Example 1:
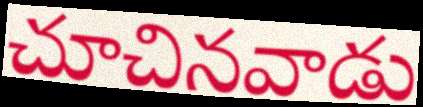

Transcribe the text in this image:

చూచినవాడు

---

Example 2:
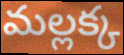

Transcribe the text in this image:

మల్లక్క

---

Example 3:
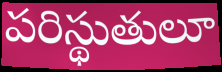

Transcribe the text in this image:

పరిస్థుతులూ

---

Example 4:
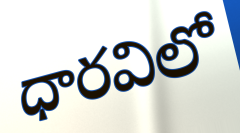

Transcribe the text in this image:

ధారవిలో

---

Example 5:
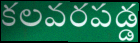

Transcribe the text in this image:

కలవరపడ్డ